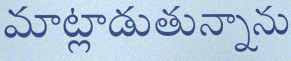
మాట్లాడుతున్నాను